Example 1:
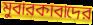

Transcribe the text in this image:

মুবারকাবাদের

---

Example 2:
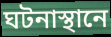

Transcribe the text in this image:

ঘটনাস্থানে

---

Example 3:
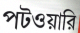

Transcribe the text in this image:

পটওয়ারি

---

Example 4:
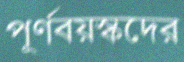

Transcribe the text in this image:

পূর্ণবয়স্কদের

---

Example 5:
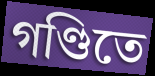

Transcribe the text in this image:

গণ্ডিতে